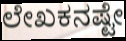
ಲೇಖಕನಷ್ಟೇ